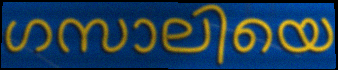
ഗസാലിയെ